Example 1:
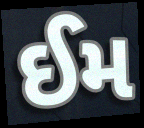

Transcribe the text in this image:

ઈમ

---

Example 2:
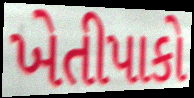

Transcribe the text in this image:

ખેતીપાકો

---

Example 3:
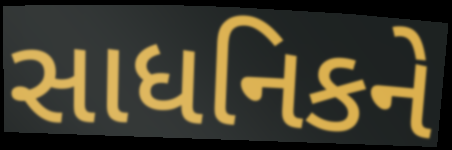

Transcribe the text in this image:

સાધનિકને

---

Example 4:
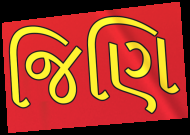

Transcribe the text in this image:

જિણિ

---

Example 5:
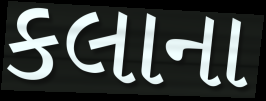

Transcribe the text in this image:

કલાના